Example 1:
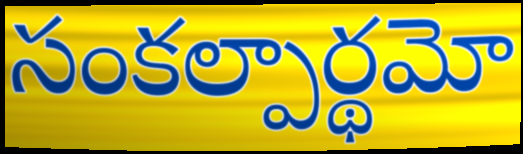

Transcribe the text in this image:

సంకల్పార్థమో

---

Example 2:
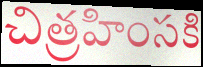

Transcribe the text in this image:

చిత్రహింసకి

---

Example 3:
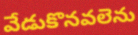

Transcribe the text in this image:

వేడుకొనవలెను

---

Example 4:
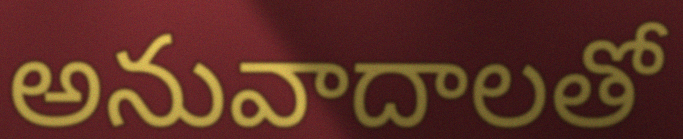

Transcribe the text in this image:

అనువాదాలతో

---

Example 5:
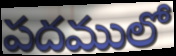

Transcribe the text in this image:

పదములో